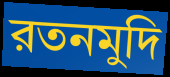
রতনমুদি